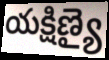
యక్షిణ్యై